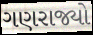
ગણરાજ્યો